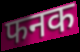
फनक